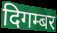
दिगम्बर